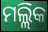
ମଲ୍ଲିକ